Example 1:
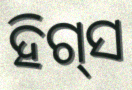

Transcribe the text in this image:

ହିଗ୍‌ସ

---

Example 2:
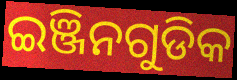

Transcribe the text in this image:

ଇଞ୍ଜିନଗୁଡିକ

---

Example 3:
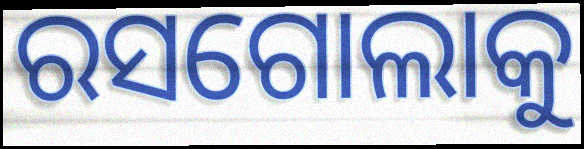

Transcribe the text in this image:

ରସଗୋଲାକୁ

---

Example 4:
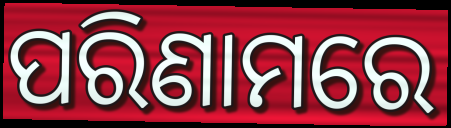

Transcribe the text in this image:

ପରିଣାମରେ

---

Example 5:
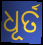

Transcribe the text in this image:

ଧୂର୍ତ